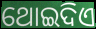
ଥୋଇଦିଏ